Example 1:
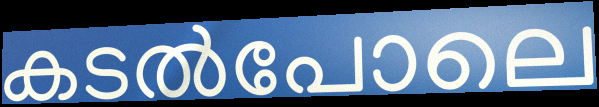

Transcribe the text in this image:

കടൽപോലെ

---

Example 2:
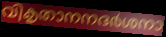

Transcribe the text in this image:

വികൃതാനനദർശനാ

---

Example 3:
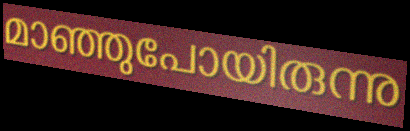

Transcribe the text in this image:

മാഞ്ഞുപോയിരുന്നു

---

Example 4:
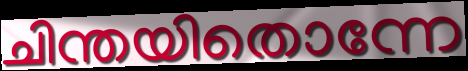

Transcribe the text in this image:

ചിന്തയിതൊന്നേ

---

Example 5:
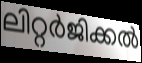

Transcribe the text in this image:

ലിറ്റർജിക്കൽ